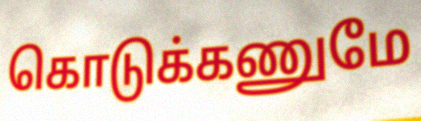
கொடுக்கணுமே